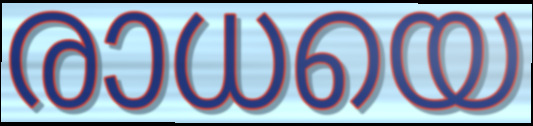
രാധയെ